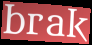
brak